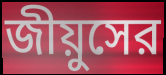
জীয়ুসের